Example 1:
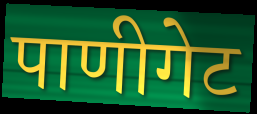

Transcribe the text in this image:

पाणीगेट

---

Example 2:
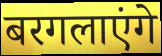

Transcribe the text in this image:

बरगलाएंगे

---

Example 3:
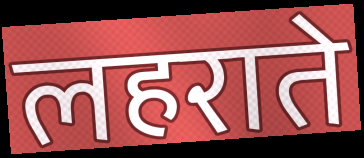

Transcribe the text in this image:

लहराते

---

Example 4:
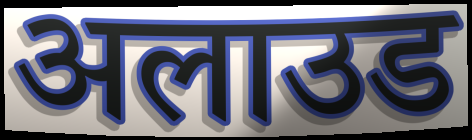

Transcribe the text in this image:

अलाउड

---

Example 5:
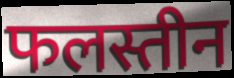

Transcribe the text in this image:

फलस्तीन